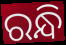
ରନ୍ଧି